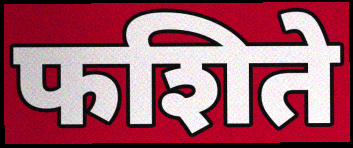
फशिते